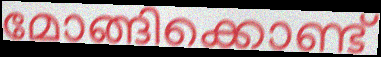
മോങ്ങിക്കൊണ്ട്